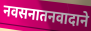
नवसनातनवादाने